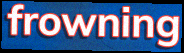
frowning